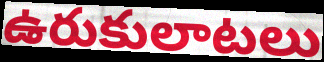
ఉరుకులాటలు